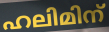
ഹലിമിന്